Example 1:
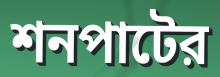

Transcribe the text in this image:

শনপাটের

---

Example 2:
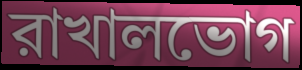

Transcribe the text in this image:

রাখালভোগ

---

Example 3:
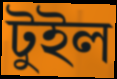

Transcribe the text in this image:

টুইল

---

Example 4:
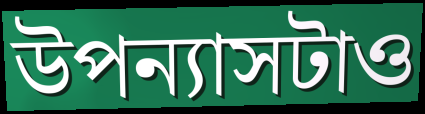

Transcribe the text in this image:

উপন্যাসটাও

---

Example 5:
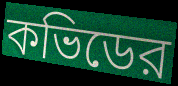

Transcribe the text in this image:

কভিডের